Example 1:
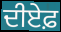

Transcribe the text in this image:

ਦੀਏਫ਼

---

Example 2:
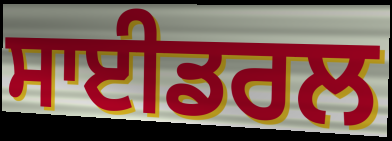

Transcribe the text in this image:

ਸਾਈਡਰਲ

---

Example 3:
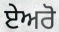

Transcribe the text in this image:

ਏਅਰੋ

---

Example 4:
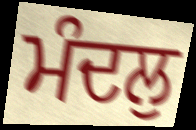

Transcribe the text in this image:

ਮੰਦਲੁ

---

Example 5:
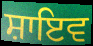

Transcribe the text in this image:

ਸ਼ਾਇਵ